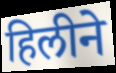
हिलीने